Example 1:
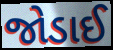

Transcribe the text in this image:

જોડાઈ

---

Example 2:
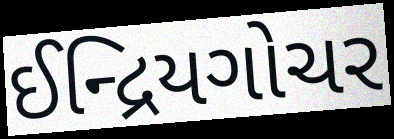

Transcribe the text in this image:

ઈન્દ્રિયગોચર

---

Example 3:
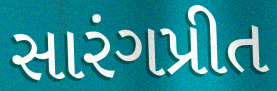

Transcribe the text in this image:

સારંગપ્રીત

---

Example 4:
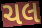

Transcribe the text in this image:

ચલ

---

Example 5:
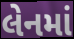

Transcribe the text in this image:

લેનમાં